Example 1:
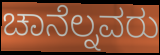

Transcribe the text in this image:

ಚಾನೆಲ್ನವರು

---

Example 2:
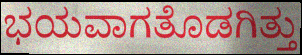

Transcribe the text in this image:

ಭಯವಾಗತೊಡಗಿತ್ತು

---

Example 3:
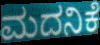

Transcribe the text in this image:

ಮದನಿಕೆ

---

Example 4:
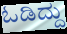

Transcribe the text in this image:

ಓಡಿದ್ದು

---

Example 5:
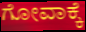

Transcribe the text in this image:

ಗೋವಾಕ್ಕೆ